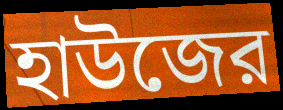
হাউজের